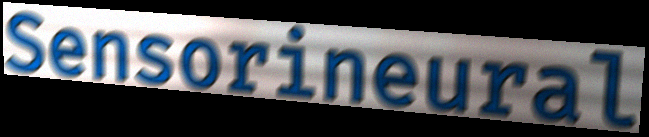
Sensorineural